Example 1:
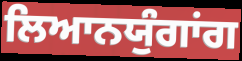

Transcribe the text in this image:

ਲਿਆਨਯੁੰਗਾਂਗ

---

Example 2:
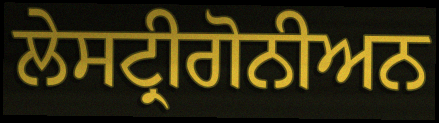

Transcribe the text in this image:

ਲੇਸਟ੍ਰੀਗੋਨੀਅਨ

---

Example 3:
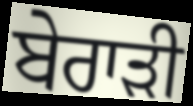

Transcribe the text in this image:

ਬੇਰਾੜੀ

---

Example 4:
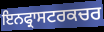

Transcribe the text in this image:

ਇਨਫ੍ਰਾਸਟਰਕਚਰ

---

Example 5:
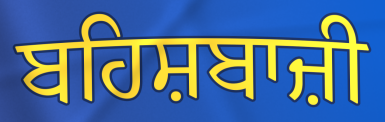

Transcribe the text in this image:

ਬਹਿਸ਼ਬਾਜ਼ੀ